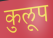
कुलूप